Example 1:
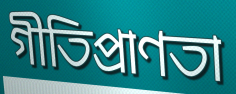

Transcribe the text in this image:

গীতিপ্রাণতা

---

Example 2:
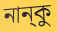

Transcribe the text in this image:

নান্‌কু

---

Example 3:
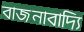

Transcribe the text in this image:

বাজনাবাদ্যি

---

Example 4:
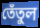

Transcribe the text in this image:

তেঁতুল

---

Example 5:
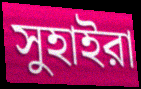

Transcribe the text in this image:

সুহাইরা